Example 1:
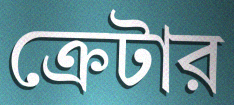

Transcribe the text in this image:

ক্রেটার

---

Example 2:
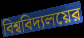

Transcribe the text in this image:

বিশ্ববিদ্যলয়ের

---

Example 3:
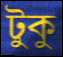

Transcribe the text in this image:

টুকু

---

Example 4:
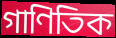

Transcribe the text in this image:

গাণিতিক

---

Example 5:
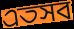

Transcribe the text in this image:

এতসব